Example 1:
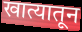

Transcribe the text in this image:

खात्यातून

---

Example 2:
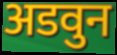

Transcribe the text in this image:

अडवुन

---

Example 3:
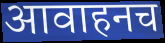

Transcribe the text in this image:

आवाहनच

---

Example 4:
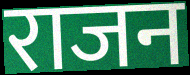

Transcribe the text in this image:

राजन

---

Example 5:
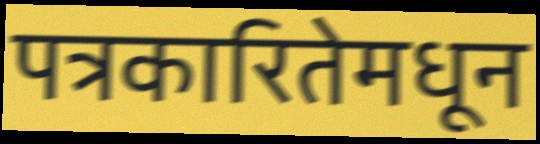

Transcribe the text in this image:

पत्रकारितेमधून